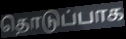
தொடுப்பாக